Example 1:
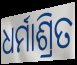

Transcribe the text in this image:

ଧର୍ମାଶ୍ରିତ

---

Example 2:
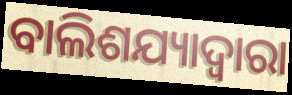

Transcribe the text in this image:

ବାଲିଶଯ୍ୟାଦ୍ଵାରା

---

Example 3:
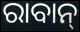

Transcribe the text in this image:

ରାବାନ୍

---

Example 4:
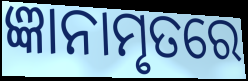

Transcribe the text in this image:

ଜ୍ଞାନାମୃତରେ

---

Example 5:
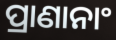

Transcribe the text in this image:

ପ୍ରାଣାନାଂ